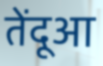
तेंदूआ